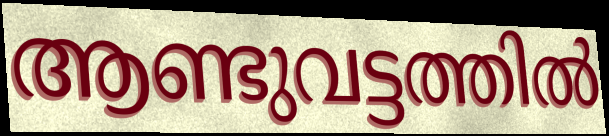
ആണ്ടുവട്ടത്തിൽ